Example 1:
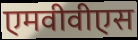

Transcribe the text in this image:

एमवीवीएस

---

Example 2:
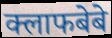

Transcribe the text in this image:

क्लाफबेबे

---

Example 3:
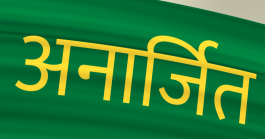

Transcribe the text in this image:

अनार्जित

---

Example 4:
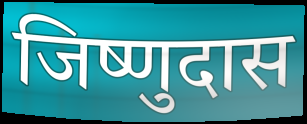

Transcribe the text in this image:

जिष्णुदास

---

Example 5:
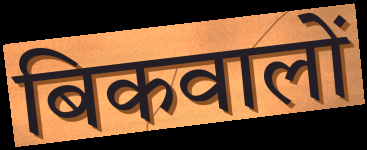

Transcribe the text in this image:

बिकवालों